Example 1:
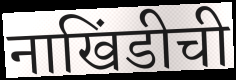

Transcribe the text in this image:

नाखिंडीची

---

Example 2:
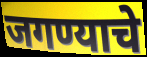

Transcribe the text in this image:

जगण्याचे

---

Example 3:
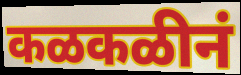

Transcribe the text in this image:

कळकळीनं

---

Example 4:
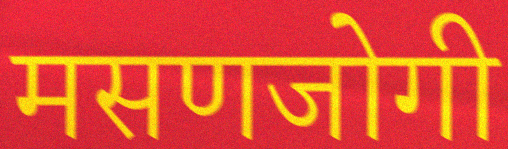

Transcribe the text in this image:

मसणजोगी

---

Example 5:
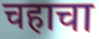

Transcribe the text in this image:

चहाचा